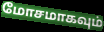
மோசமாகவும்